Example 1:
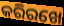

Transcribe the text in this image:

କରିରଖେ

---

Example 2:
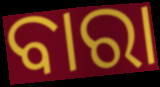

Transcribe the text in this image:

ବାରା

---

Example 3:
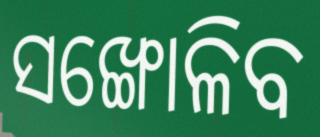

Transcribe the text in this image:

ସଙ୍ଖୋଳିବ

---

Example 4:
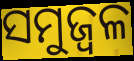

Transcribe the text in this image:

ସମୁଜ୍ୱଳ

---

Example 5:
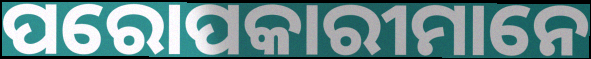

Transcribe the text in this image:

ପରୋପକାରୀମାନେ